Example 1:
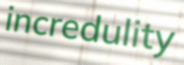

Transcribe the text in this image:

incredulity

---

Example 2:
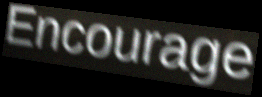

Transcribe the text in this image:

Encourage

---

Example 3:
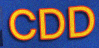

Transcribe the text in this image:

CDD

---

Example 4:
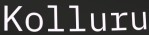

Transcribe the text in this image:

Kolluru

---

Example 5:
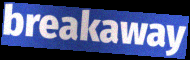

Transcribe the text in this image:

breakaway